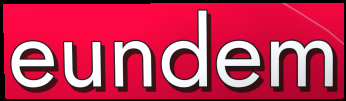
eundem